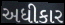
અધીકાર